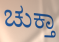
ಚುಕ್ತಾ